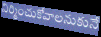
నిర్మించుకోవాలనుకునే